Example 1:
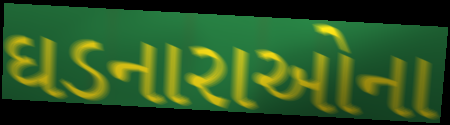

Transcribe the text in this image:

ઘડનારાઓના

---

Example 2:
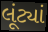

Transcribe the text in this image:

લૂંટ્યાં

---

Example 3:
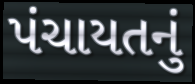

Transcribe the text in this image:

પંચાયતનું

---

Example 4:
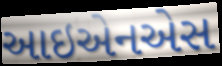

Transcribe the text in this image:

આઇએનએસ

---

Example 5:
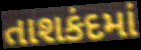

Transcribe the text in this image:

તાશકંદમાં